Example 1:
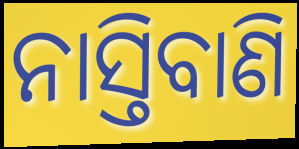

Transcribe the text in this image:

ନାସ୍ତିବାଣି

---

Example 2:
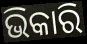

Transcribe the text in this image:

ଭିକାରି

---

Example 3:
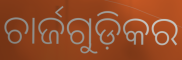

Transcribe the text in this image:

ଚାର୍ଜଗୁଡ଼ିକର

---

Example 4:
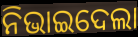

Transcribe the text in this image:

ନିଭାଇଦେଲା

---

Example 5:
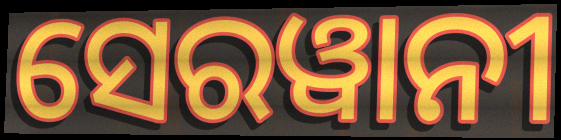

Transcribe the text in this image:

ସେରୱାନୀ